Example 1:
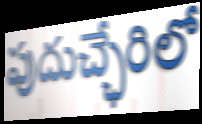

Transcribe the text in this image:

పుదుచ్ఛేరిలో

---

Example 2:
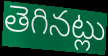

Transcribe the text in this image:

తెగినట్లు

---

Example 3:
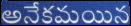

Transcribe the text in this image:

అనేకమయిన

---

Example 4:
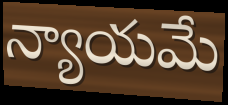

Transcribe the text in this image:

న్యాయమే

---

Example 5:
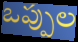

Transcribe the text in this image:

ఒప్పుల